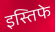
इस्तिफे